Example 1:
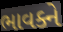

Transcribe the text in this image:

ભાવક્ને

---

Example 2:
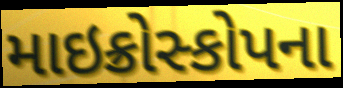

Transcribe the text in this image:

માઇક્રોસ્કોપના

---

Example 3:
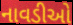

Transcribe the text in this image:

નાવડીઓ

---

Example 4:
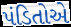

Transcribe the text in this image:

પંડિતોએ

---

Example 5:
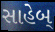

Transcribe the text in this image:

સાહેબ્